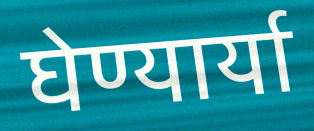
घेण्यार्या